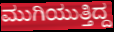
ಮುಗಿಯುತ್ತಿದ್ದ